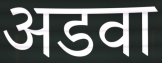
अडवा